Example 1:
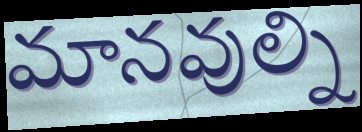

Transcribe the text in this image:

మానవుల్ని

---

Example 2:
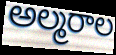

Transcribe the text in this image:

అల్మరాల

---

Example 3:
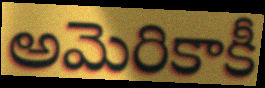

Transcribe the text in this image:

అమెరికాకీ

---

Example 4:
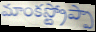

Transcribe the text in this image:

మాంకస్ట్రోప్పా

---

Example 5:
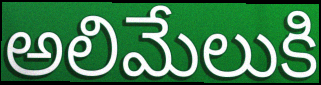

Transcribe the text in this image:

అలిమేలుకి